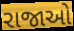
રાજાઓ